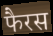
फैरस